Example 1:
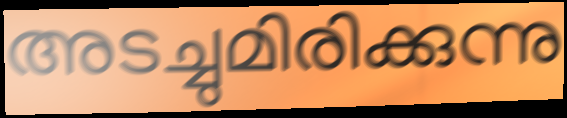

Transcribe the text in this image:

അടച്ചുമിരിക്കുന്നു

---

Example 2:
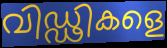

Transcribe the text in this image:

വിഡ്ഢികളെ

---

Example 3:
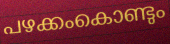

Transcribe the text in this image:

പഴക്കംകൊണ്ടും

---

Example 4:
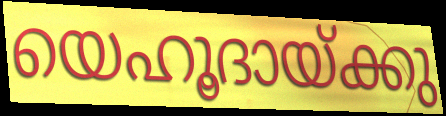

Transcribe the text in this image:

യെഹൂദായ്ക്കു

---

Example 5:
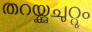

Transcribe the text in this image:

തറയ്ക്കുചുറ്റും